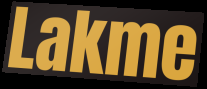
Lakme